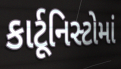
કાર્ટૂનિસ્ટોમાં